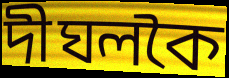
দীঘলকৈ